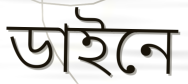
ডাইনে